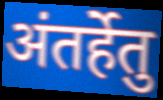
अंतर्हेतु